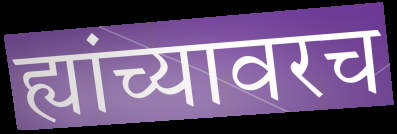
ह्यांच्यावरच